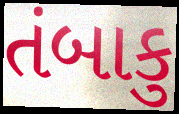
તંબાકુ